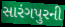
સારંગપુરની